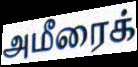
அமீரைக்